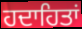
ਹਦਾਹਿਤਾਂ